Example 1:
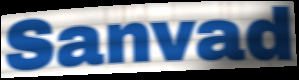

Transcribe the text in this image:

Sanvad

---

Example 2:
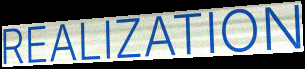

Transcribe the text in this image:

REALIZATION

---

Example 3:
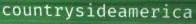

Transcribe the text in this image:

countrysideamerica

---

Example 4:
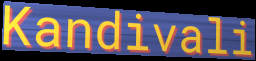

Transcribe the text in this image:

Kandivali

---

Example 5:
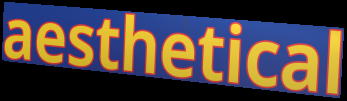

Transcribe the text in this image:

aesthetical